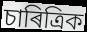
চাৰিত্ৰিক